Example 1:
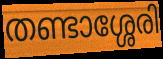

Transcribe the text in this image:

തണ്ടാശ്ശേരി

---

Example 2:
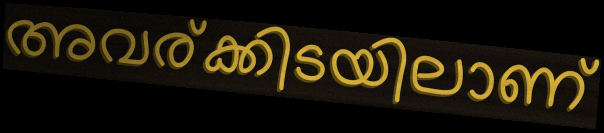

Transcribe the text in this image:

അവര്ക്കിടയിലാണ്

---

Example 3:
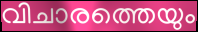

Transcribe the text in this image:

വിചാരത്തെയും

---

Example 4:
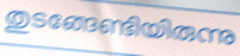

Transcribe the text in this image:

തുടങ്ങേണ്ടിയിരുന്നു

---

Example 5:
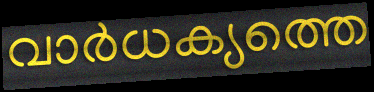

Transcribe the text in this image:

വാർധക്യത്തെ